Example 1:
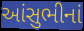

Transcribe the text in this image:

આંસુભીનાં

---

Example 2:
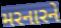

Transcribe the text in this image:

મરનારને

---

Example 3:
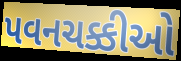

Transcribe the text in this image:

પવનચક્કીઓ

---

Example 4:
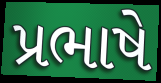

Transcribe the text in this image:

પ્રભાષે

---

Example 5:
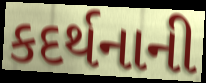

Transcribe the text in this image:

કદર્થનાની